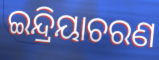
ଇନ୍ଦ୍ରିୟାଚରଣ